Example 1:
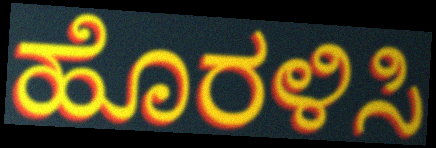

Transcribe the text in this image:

ಹೊರಳಿಸಿ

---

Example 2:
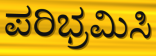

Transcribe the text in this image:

ಪರಿಭ್ರಮಿಸಿ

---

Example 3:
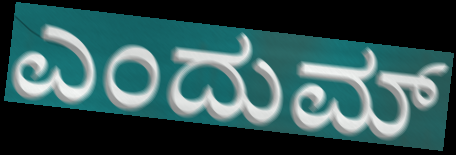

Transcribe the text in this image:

ಎಂದುಮ್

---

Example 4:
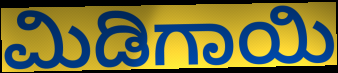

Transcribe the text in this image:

ಮಿಡಿಗಾಯಿ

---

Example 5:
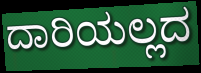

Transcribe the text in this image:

ದಾರಿಯಲ್ಲದ